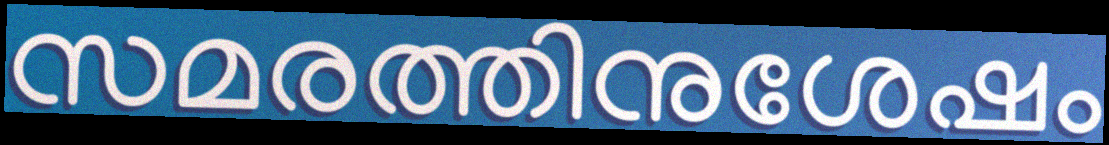
സമരത്തിനുശേഷം